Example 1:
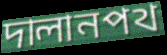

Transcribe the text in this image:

দালানপথ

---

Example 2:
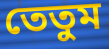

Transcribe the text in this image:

তেতুম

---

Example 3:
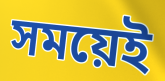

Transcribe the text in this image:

সময়েই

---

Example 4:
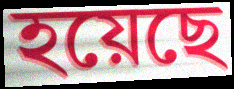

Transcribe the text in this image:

হয়েছে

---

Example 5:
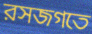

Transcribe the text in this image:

রসজগতে